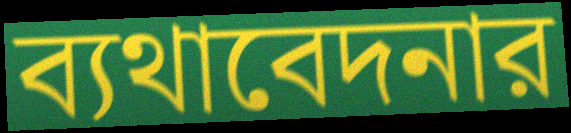
ব্যথাবেদনার